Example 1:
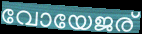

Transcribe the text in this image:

വോയേജര്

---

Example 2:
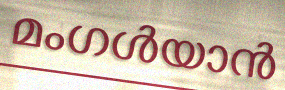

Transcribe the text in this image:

മംഗൾയാൻ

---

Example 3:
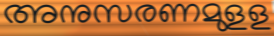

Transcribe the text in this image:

അനുസരണമുളള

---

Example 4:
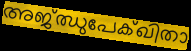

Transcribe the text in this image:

അജ്ഝുപേക്ഖിതാ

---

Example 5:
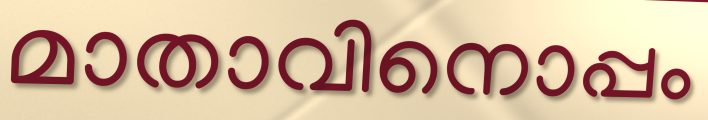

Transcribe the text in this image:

മാതാവിനൊപ്പം